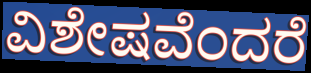
ವಿಶೇಷವೆಂದರೆ